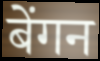
बेंगन